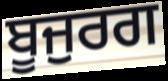
ਬੂਜੁਰਗ